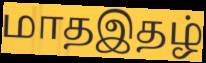
மாதஇதழ்